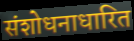
संशोधनाधारित